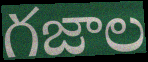
గజాల